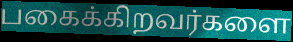
பகைக்கிறவர்களை